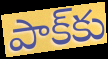
పాక్‌కు